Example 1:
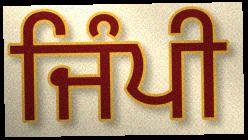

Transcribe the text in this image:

ਜਿੰਪੀ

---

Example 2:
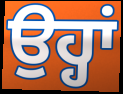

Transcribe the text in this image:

ਉਹ੍ਹਾਂ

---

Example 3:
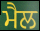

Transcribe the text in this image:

ਮੈਲ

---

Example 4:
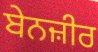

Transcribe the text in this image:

ਬੇਨਜ਼ੀਰ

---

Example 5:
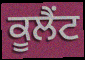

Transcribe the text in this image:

ਕੂਲੈਂਟ